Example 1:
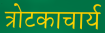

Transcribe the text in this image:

त्रोटकाचार्य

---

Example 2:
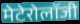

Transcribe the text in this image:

मेटेरोलॉजी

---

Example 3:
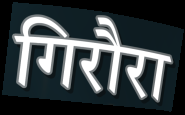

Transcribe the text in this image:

गिरौरा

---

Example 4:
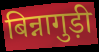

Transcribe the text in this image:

बिन्नागुड़ी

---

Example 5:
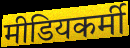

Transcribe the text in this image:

मीडियकर्मी